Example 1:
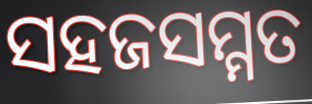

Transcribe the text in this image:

ସହଜସମ୍ମତ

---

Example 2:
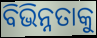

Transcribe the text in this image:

ବିଭିନ୍ନତାକୁ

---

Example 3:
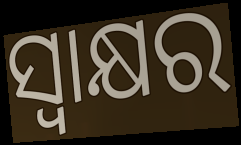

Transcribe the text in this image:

ସ୍ଵାକ୍ଷର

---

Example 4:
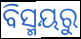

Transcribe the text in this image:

ବିସ୍ମୟରୁ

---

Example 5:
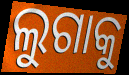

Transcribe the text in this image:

ଲୁଗାକୁ